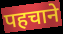
पहचाने